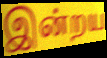
இன்றய